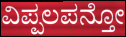
ವಿಪ್ಪಲಪನ್ತೋ